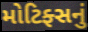
મોટિફ્સનું